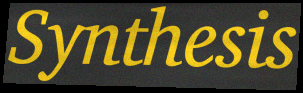
Synthesis